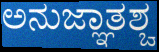
ಅನುಜ್ಞಾತಶ್ಚ